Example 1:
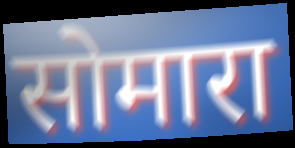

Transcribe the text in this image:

सोमारा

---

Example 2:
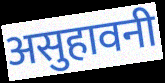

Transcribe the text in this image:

असुहावनी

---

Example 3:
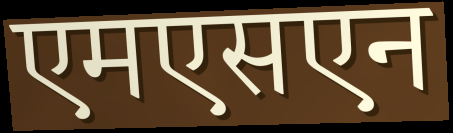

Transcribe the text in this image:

एमएसएन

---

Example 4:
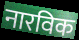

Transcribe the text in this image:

नारविक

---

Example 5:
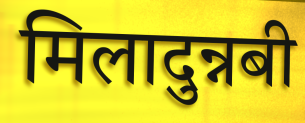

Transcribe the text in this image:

मिलादुन्नबी